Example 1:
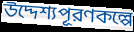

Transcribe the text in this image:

উদ্দেশ্যপূরণকল্পে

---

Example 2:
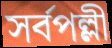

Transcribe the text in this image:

সর্বপল্লী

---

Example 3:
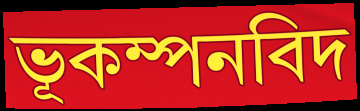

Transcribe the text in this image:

ভূকম্পনবিদ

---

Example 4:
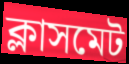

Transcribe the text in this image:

ক্লাসমেট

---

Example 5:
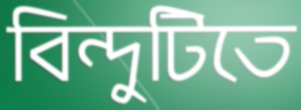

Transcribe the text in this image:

বিন্দুটিতে